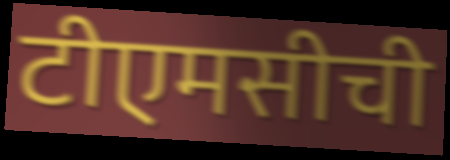
टीएमसीची